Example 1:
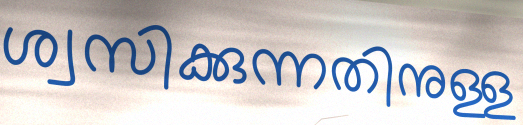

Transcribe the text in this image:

ശ്വസിക്കുന്നതിനുള്ള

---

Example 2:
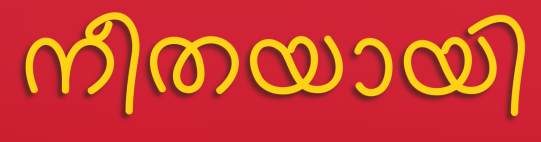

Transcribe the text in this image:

നീതയായി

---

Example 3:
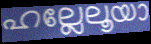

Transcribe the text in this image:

ഹല്ലേലൂയാ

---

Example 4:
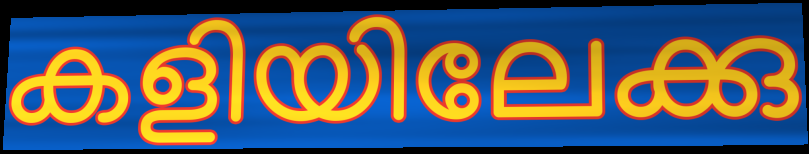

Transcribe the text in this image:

കളിയിലേക്കു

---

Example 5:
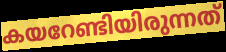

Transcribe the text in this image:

കയറേണ്ടിയിരുന്നത്